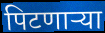
पिटणाऱ्या